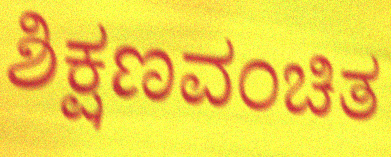
ಶಿಕ್ಷಣವಂಚಿತ